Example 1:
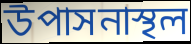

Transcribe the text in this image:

উপাসনাস্থল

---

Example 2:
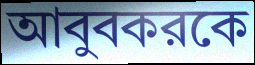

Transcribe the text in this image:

আবুবকরকে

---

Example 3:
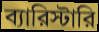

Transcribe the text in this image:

ব্যারিস্টারি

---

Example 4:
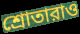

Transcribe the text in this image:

শ্রোতারাও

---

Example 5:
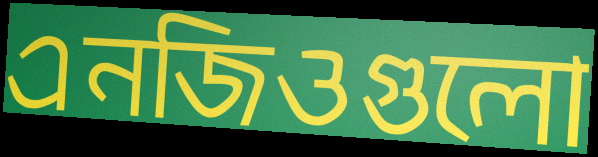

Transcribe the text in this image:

এনজিওগুলো